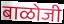
बाळोजी